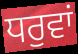
ਧਰੁਵਾਂ